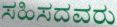
ಸಹಿಸದವರು